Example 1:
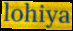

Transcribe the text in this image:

lohiya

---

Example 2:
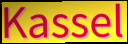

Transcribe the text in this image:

Kassel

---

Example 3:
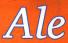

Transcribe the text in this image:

Ale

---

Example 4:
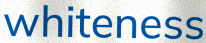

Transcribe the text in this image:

whiteness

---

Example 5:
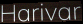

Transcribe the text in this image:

Harivar